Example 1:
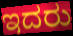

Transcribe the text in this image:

ಇದರು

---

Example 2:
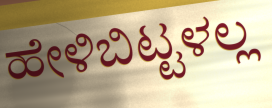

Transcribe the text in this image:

ಹೇಳಿಬಿಟ್ಟಳಲ್ಲ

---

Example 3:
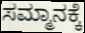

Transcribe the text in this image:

ಸಮ್ಮಾನಕ್ಕೆ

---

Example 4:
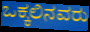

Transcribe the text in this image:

ಒಕ್ಕಲಿನವರು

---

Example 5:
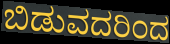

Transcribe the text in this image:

ಬಿಡುವದರಿಂದ